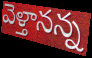
వెళ్తానన్న